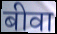
बीवा